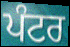
ਪੰਟਰ